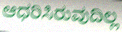
ಆಧರಿಸಿರುವುದಿಲ್ಲ